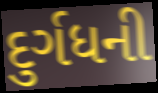
દુર્ગધની